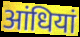
आंधियां